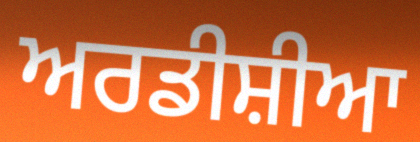
ਅਰਡੀਸ਼ੀਆ